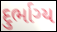
દુર્ભાગ્ય